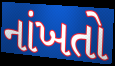
નાંખતો